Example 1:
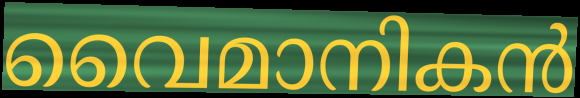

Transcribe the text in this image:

വൈമാനികൻ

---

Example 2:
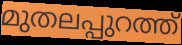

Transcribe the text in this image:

മുതലപ്പുറത്ത്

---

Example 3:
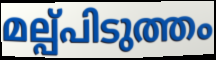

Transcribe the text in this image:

മല്പ്പിടുത്തം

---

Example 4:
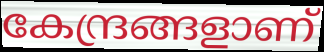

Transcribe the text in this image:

കേന്ദ്രങ്ങളാണ്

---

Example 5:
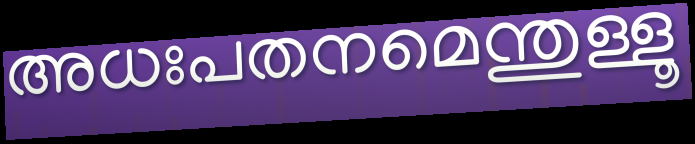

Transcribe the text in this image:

അധഃപതനമെന്തുള്ളൂ